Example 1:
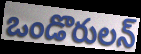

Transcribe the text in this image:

ఒండొరులన్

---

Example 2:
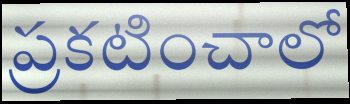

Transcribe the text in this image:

ప్రకటించాలో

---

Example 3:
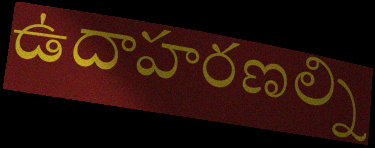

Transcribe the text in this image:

ఉదాహరణల్ని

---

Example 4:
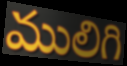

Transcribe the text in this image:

ములిగి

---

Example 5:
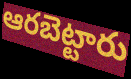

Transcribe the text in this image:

ఆరబెట్టారు